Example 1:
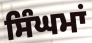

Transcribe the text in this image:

ਸਿੰਘਮਾਂ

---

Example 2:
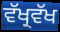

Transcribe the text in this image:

ਵੱਖ੍ਰਵੱਖ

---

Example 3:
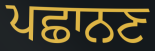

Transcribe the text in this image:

ਪਛਾਨਣ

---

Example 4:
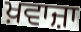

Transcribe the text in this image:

ਖ਼ਵਾਜ਼ਾ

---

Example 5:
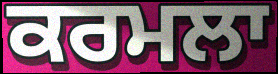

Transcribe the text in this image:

ਕਰਮਲਾ